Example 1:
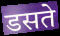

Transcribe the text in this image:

डसते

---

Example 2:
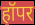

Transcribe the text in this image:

हॉपर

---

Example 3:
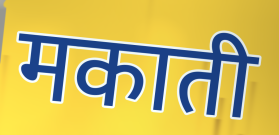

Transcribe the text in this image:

मकाती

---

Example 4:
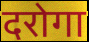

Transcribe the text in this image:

दरोगा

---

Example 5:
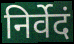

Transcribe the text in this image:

निर्वेदं